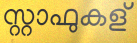
സ്റ്റാഫുകള്